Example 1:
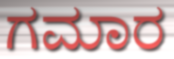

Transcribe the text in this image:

ಗಮಾರ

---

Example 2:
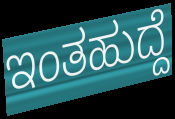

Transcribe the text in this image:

ಇಂತಹುದ್ದೆ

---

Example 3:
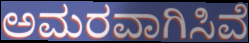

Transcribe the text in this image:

ಅಮರವಾಗಿಸಿವೆ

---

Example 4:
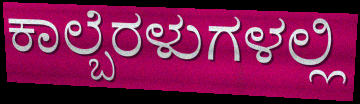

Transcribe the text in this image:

ಕಾಲ್ಬೆರಳುಗಳಲ್ಲಿ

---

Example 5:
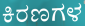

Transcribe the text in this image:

ಕಿರಣಗಳ